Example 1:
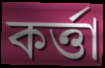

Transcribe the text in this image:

কর্ত্তা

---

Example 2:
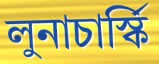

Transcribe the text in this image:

লুনাচার্স্কি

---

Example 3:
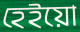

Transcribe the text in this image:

হেইয়ো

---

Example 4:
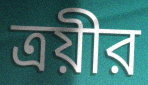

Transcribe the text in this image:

ত্রয়ীর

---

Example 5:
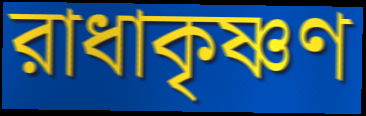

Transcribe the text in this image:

রাধাকৃষ্ণণ